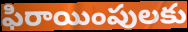
ఫిరాయింపులకు